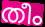
തീം